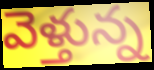
వెళ్తున్న